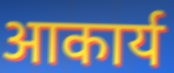
आकार्य